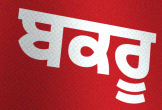
ਬਕਰੂ